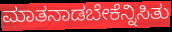
ಮಾತನಾಡಬೇಕೆನ್ನಿಸಿತು